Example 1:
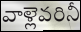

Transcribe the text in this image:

వాళ్లెవరినీ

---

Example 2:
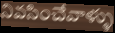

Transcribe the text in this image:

నివసించేవాళ్ళు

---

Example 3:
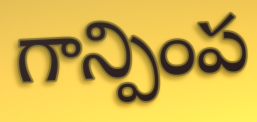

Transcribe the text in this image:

గాన్పింప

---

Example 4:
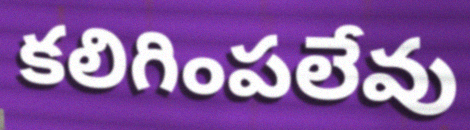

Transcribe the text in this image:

కలిగింపలేవు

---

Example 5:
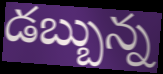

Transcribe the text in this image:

డబ్బున్న